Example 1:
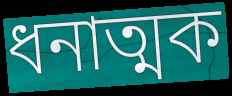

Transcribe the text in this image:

ধনাত্মক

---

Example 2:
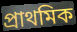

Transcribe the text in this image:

প্ৰাথমিক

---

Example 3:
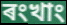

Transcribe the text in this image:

ৰংখাং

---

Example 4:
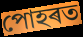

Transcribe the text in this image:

পোহৰত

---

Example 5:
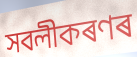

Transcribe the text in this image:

সবলীকৰণৰ